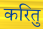
करितु